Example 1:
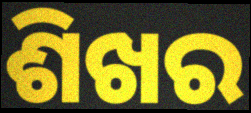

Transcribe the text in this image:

ଶିଖର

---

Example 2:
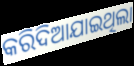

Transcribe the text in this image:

କରିଦିଆଯାଇଥିଲା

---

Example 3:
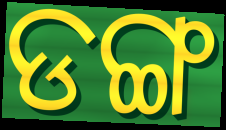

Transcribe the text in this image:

ଡଙ୍ଗ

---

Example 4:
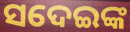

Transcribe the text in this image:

ସଦେଇଙ୍କ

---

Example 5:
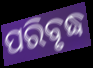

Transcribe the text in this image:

ପରିବୃଦ୍ଧ